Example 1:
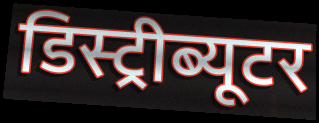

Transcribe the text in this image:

डिस्ट्रीब्यूटर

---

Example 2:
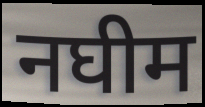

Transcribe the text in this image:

नघीम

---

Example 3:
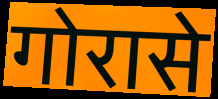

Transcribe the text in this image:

गोरासे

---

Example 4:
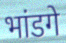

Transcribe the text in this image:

भांडगे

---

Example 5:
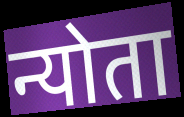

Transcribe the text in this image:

न्योता